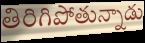
తిరిగిపోతున్నాడు